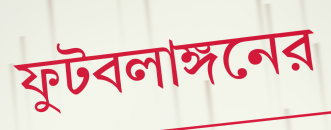
ফুটবলাঙ্গনের